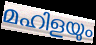
മഹിളയും